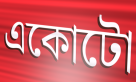
একোটো